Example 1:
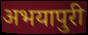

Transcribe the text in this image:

अभयापुरी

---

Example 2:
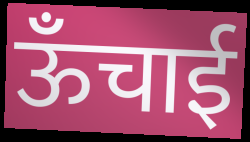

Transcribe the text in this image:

ऊँचाई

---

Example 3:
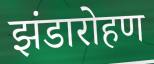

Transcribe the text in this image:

झंडारोहण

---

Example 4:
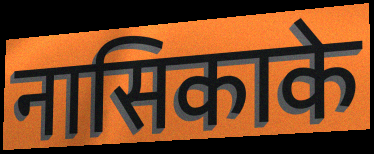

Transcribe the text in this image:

नासिकाके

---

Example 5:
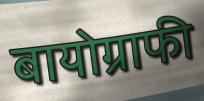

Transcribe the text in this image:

बायोग्राफी